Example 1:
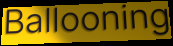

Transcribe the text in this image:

Ballooning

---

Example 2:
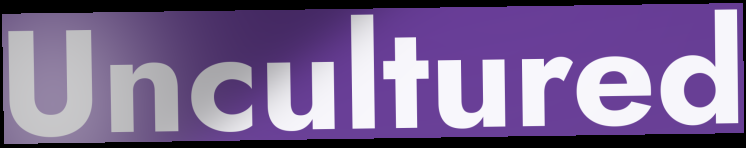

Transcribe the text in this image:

Uncultured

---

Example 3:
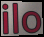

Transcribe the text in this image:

ilo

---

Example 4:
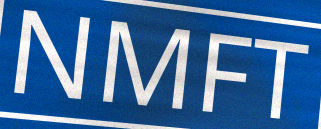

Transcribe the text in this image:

NMFT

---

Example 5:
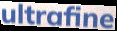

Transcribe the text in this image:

ultrafine